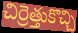
చిర్రెత్తుకొచ్చి